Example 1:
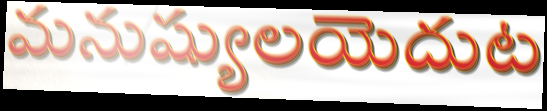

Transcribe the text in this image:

మనుష్యులయెదుట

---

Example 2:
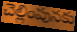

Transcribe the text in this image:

చెల్లింపునకు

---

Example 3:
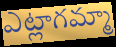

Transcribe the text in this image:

ఎట్లాగమ్మా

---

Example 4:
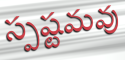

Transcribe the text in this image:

స్పష్టమవు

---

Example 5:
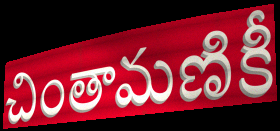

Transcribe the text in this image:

చింతామణికీ